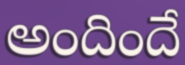
అందిందే